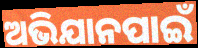
ଅଭିଯାନପାଇଁ